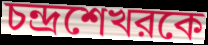
চন্দ্রশেখরকে